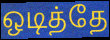
ஒடித்தே